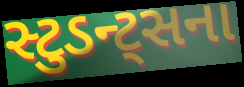
સ્ટુડન્ટ્સના